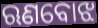
ଋଣବୋଝ